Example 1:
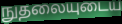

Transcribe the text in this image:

நுதலையுடைய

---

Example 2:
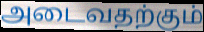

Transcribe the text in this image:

அடைவதற்கும்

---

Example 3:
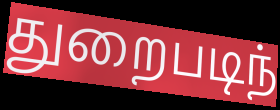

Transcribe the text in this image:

துறைபடிந்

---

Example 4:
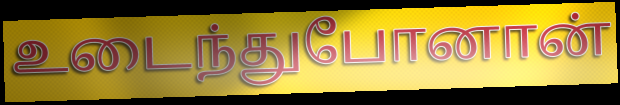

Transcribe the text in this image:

உடைந்துபோனான்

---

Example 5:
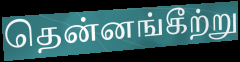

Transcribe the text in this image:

தென்னங்கீற்று